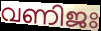
വണിജഃ